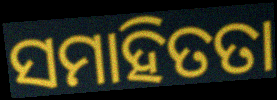
ସମାହିତତା